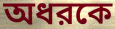
অধরকে